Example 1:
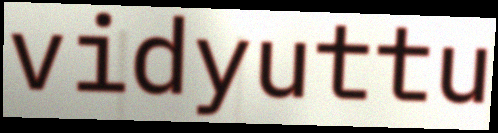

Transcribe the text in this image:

vidyuttu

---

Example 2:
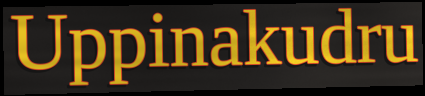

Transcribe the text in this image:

Uppinakudru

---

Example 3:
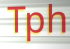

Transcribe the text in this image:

Tph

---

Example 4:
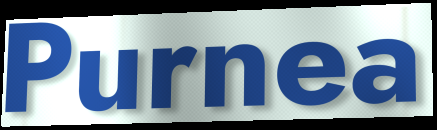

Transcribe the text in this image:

Purnea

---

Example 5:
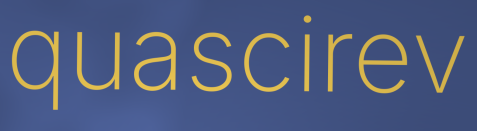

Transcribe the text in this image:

quascirev